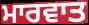
ਮਾਰਵਾਤ